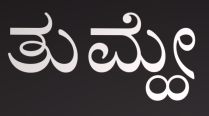
ತುಮ್ಹೇ